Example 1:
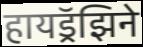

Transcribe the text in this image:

हायड्रॅझिने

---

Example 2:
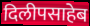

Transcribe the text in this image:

दिलीपसाहेब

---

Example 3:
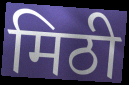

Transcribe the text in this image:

मिठी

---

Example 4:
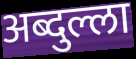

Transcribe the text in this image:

अब्दुल्ला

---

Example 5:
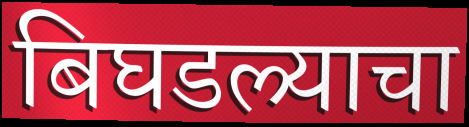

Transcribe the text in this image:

बिघडल्याचा